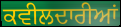
ਕਵੀਲਦਾਰੀਆਂ